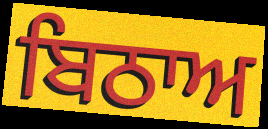
ਬਿਠਾਅ